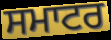
ਸਮਾਟਰ